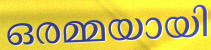
ഒരമ്മയായി